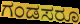
ಗಂಡಸರೂ